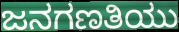
ಜನಗಣತಿಯು